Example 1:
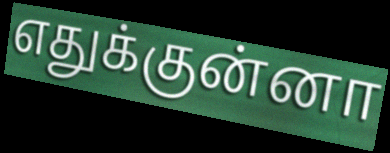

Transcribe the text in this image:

எதுக்குன்னா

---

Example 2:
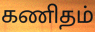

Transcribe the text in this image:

கணிதம்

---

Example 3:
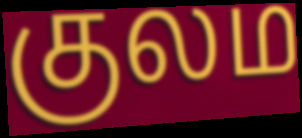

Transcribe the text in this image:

குலம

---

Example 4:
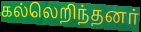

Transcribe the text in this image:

கல்லெறிந்தனர்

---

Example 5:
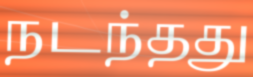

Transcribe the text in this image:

நடந்தது